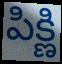
పిక్ణి